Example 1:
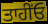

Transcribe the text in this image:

ਤਾਹੀਂਓ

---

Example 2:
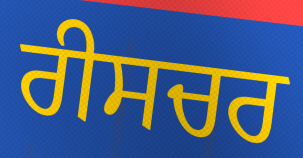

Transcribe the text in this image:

ਰੀਸਚਰ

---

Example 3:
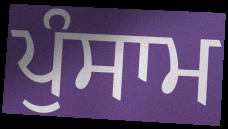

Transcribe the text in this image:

ਪੁੰਸਾਮ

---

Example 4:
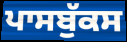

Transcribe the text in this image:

ਪਾਸਬੁੱਕਸ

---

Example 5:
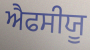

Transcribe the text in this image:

ਐਫਸੀਯੂ